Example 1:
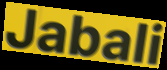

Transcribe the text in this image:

Jabali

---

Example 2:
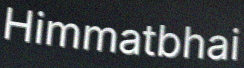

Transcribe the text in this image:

Himmatbhai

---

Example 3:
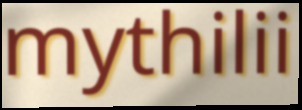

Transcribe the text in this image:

mythilii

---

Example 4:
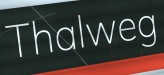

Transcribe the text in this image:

Thalweg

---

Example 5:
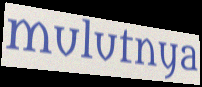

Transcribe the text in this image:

mulutnya